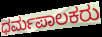
ಧರ್ಮಪಾಲಕರು